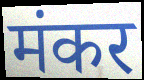
मंकर